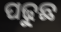
ପଢୁଛ